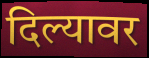
दिल्यावर